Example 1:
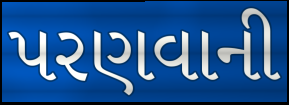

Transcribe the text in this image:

પરણવાની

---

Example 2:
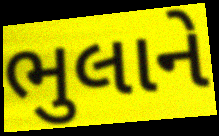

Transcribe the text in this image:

ભુલાને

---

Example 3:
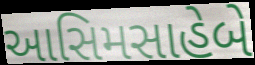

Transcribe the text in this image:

આસિમસાહેબે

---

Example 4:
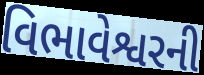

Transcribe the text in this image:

વિભાવેશ્વરની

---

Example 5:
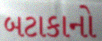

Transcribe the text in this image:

બટાકાનો